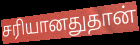
சரியானதுதான்